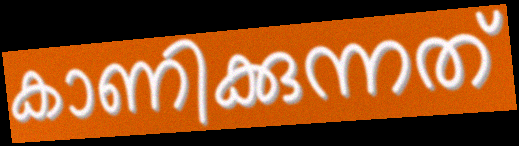
കാണിക്കുന്നത്